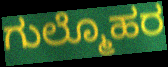
ಗುಲ್ಮೊಹರ